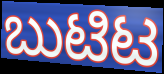
ಬುಟಿಟ